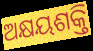
ଅକ୍ଷୟଶକ୍ତି